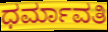
ಧರ್ಮಾವತಿ